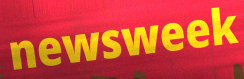
newsweek